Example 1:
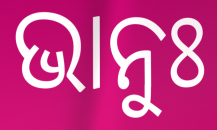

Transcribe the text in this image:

ଭାନୁଃ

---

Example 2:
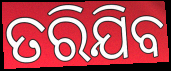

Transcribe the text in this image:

ତରିଯିବ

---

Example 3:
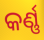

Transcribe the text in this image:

କର୍ଣ୍ଣ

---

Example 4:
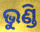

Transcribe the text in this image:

ଭୁଣ୍ଡି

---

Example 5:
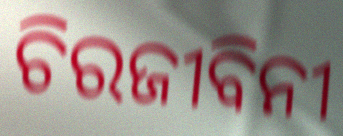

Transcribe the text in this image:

ଚିରଜୀବିନୀ